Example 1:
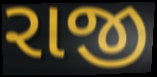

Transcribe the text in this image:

રાજી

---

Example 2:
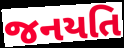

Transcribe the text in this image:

જનયતિ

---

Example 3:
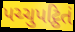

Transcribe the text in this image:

પચ્ચુપટ્ઠિતં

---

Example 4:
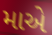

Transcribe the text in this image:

માએ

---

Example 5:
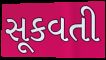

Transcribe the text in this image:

સૂકવતી